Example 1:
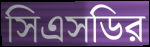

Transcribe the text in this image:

সিএসডির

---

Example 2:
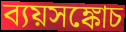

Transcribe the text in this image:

ব্যয়সঙ্কোচ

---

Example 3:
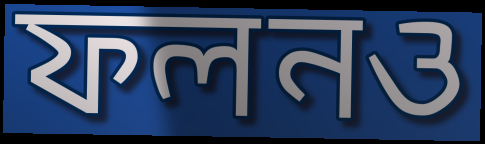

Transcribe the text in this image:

ফলনও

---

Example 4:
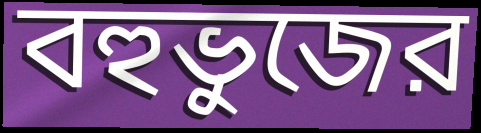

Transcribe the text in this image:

বহুভুজের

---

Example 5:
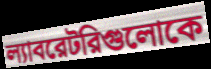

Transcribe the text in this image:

ল্যাবরেটরিগুলোকে